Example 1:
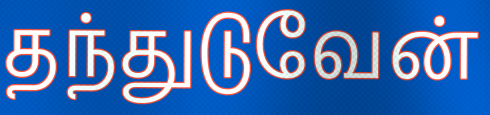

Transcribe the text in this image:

தந்துடுவேன்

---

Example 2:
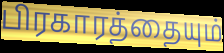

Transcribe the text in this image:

பிரகாரத்தையும்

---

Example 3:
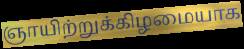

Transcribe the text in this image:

ஞாயிற்றுக்கிழமையாக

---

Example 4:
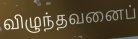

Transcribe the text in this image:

விழுந்தவனைப்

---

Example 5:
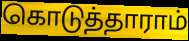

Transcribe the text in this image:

கொடுத்தாராம்